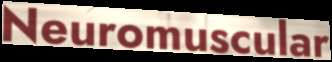
Neuromuscular